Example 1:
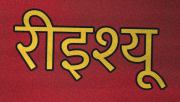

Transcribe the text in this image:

रीइश्यू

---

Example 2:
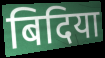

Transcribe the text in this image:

बिदिया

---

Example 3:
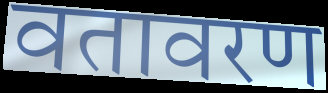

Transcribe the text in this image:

वतावरण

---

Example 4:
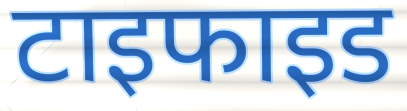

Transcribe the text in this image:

टाइफाइड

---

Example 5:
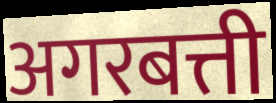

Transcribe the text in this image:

अगरबत्ती